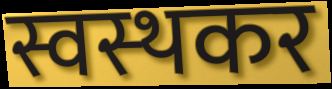
स्वस्थकर